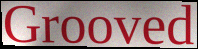
Grooved